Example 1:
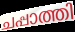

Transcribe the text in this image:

ചപ്പാത്തി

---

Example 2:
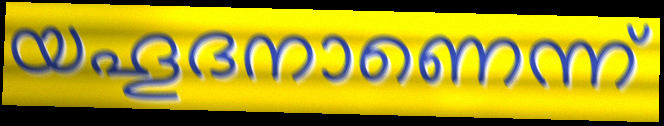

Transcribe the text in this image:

യഹൂദനാണെന്ന്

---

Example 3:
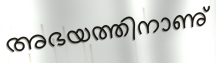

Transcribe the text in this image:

അഭയത്തിനാണു്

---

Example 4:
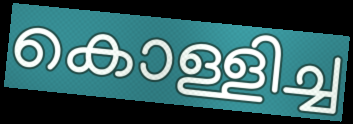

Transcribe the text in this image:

കൊള്ളിച്ച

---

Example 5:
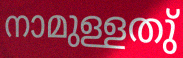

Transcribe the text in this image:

നാമുള്ളതു്